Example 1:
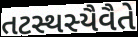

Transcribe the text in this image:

તટસ્થસ્યૈવૈતે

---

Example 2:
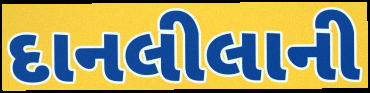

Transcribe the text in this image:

દાનલીલાની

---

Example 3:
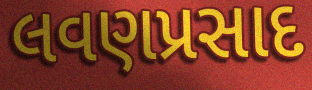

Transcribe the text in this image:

લવણપ્રસાદ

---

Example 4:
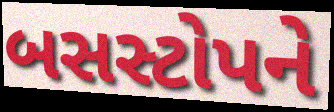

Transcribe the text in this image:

બસસ્ટોપને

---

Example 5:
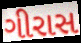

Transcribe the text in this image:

ગીરાસ